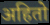
अहितो